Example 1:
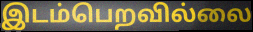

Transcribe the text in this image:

இடம்பெறவில்லை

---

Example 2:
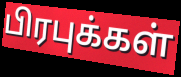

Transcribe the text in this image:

பிரபுக்கள்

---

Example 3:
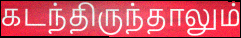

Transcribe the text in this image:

கடந்திருந்தாலும்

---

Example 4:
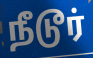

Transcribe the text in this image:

நீடூர்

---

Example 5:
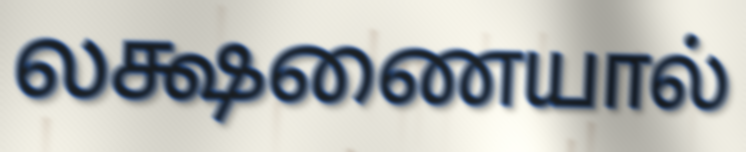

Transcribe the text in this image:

லக்ஷணையால்